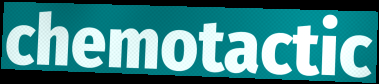
chemotactic